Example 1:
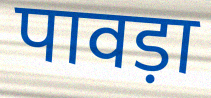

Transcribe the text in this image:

पावड़ा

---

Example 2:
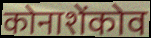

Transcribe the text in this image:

कोनाशेंकोव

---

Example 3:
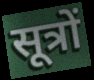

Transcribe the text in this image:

सूत्रों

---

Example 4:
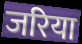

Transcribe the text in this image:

जरिया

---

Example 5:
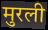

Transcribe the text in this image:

मुरली